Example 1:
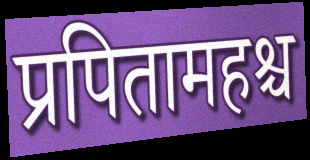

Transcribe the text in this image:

प्रपितामहश्च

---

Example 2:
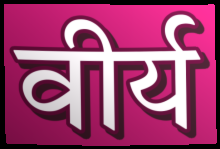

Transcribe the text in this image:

वीर्य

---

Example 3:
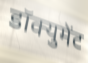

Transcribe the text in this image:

डॉक्युमेंट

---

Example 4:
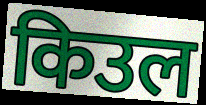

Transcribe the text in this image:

किउल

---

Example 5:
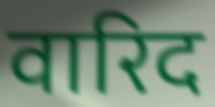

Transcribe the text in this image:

वारिद